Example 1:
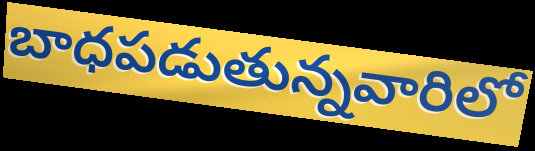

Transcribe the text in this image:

బాధపడుతున్నవారిలో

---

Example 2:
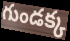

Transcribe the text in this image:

గుండక్క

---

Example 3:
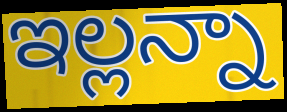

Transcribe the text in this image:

ఇల్లన్నా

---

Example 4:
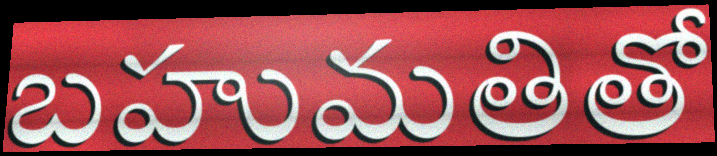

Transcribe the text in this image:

బహుమతితో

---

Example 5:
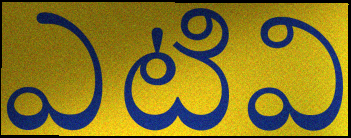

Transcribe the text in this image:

ఎటివి